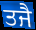
ਤਜੈ